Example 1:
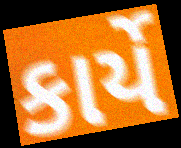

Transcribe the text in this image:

કાર્યે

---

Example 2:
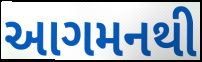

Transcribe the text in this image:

આગમનથી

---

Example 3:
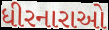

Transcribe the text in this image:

ધીરનારાઓ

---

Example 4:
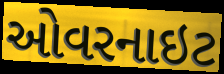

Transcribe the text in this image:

ઓવરનાઇટ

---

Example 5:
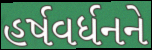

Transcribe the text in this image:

હર્ષવર્ધનને